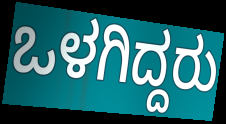
ಒಳಗಿದ್ದರು